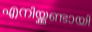
എനിയ്ക്കുണ്ടായി